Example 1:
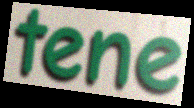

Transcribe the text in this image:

tene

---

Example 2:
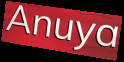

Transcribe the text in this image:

Anuya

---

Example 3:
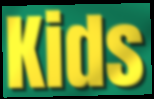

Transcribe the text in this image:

Kids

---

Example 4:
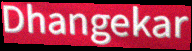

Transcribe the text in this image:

Dhangekar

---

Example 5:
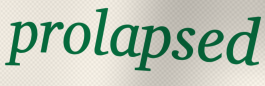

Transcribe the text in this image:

prolapsed